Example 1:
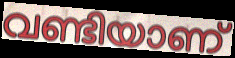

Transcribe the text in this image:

വണ്ടിയാണ്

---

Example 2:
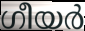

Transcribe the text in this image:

ഗീയർ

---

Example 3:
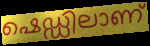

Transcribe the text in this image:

ഷെഡ്ഡിലാണ്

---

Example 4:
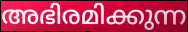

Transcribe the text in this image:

അഭിരമിക്കുന്ന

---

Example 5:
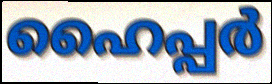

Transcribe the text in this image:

ഹൈപ്പർ